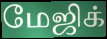
மேஜிக்